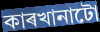
কাৰখানাটো